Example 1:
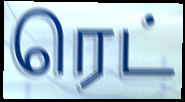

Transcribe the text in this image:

ரெட்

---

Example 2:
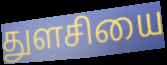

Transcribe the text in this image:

துளசியை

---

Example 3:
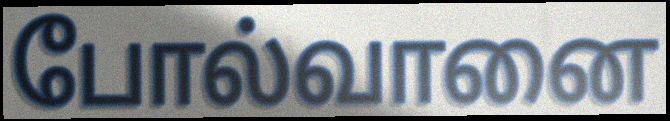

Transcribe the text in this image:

போல்வானை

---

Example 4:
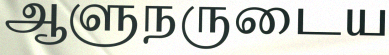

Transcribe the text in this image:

ஆளுநருடைய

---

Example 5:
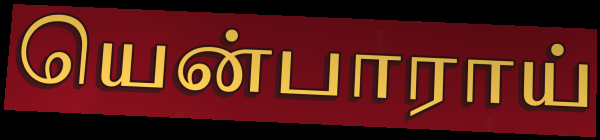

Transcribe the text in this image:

யென்பாராய்